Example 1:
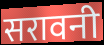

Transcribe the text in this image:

सरावनी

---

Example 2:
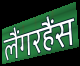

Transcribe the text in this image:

लैंगरहैंस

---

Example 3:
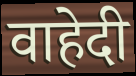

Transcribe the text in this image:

वाहेदी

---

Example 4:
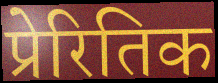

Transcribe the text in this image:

प्रेरितिक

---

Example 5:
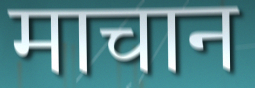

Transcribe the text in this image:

माचान